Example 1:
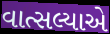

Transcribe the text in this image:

વાત્સલ્યાએ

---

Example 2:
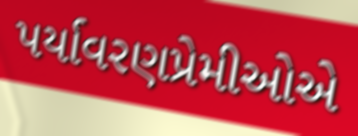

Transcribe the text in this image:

પર્યાવરણપ્રેમીઓએ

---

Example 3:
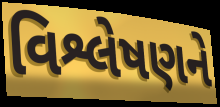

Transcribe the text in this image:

વિશ્લેષણને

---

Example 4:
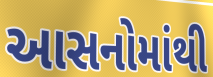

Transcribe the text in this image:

આસનોમાંથી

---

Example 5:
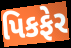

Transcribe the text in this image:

પિકફેર